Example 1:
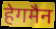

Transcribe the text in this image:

हेगमैन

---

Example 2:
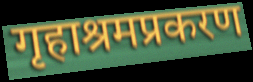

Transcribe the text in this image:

गृहाश्रमप्रकरण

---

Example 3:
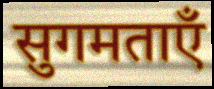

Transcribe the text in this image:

सुगमताएँ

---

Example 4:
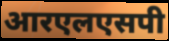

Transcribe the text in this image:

आरएलएसपी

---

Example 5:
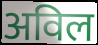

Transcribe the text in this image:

अविल